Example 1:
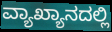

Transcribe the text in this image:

ವ್ಯಾಖ್ಯಾನದಲ್ಲಿ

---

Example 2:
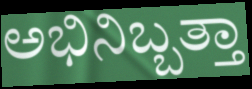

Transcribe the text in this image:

ಅಭಿನಿಬ್ಬತ್ತಾ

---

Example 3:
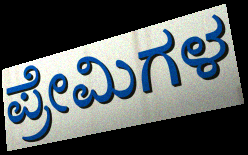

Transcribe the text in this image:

ಪ್ರೇಮಿಗಳ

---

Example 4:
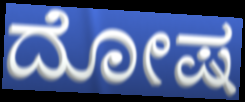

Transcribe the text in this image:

ದೋಷ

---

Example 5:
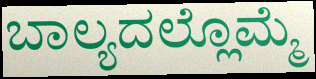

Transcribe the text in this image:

ಬಾಲ್ಯದಲ್ಲೊಮ್ಮೆ